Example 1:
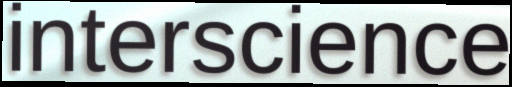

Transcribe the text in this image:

interscience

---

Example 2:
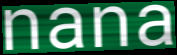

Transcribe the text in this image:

nana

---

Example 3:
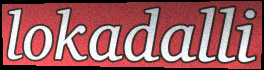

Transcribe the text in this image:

lokadalli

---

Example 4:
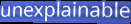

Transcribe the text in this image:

unexplainable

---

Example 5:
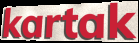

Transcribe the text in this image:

kartak